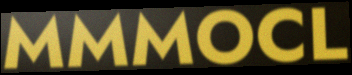
MMMOCL